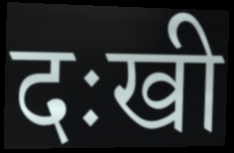
दःखी